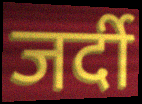
जर्दी